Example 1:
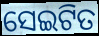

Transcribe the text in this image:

ସେଇଟିତ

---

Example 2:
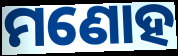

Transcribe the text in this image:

ମଣୋହ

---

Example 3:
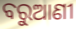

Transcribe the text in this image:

ବରୁଆଣୀ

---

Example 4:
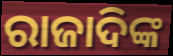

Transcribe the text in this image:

ରାଜାଦିଙ୍କ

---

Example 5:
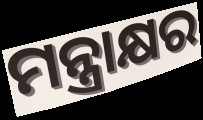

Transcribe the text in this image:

ମନ୍ତ୍ରାକ୍ଷର